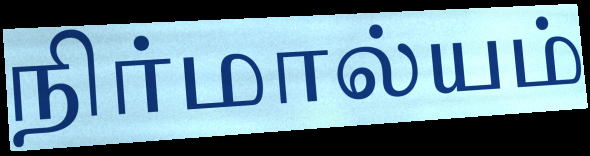
நிர்மால்யம்